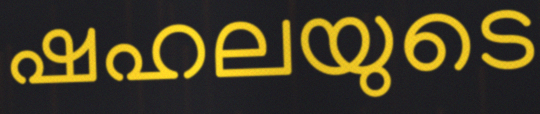
ഷഹലയുടെ